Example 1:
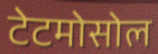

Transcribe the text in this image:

टेटमोसोल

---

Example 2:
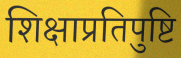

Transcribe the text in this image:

शिक्षाप्रतिपुष्टि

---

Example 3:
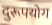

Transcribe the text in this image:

दुरूपयोग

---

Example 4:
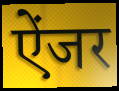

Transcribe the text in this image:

ऐंजर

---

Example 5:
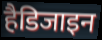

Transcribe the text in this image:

हैडिजाइन